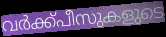
വർക്ക്പീസുകളുടെ